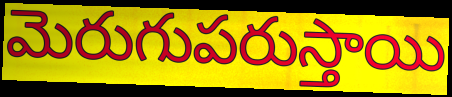
మెరుగుపరుస్తాయి